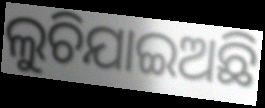
ଲୁଚିଯାଇଅଛି